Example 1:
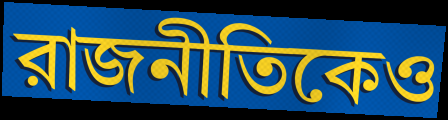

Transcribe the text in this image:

রাজনীতিকেও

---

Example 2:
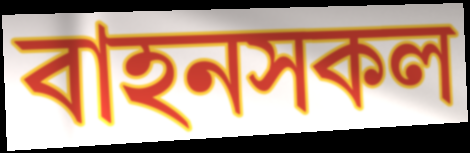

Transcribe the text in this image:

বাহনসকল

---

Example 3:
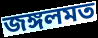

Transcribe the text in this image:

জঙ্গলমত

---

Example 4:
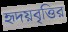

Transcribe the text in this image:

হৃদয়বৃত্তির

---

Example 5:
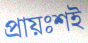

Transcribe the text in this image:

প্রায়ঃশই